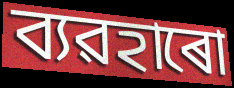
ব্যৱহাৰো